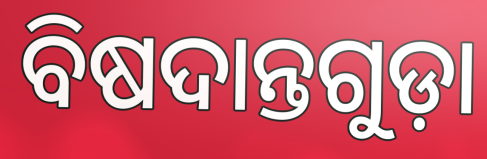
ବିଷଦାନ୍ତଗୁଡ଼ା